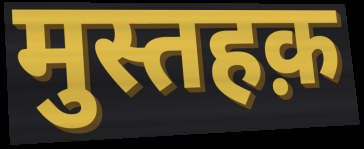
मुस्तहक़